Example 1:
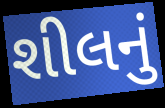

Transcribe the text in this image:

શીલનું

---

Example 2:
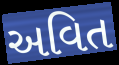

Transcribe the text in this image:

અવિત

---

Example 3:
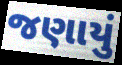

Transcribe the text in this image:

જણાયું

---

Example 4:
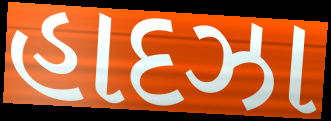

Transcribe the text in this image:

હાદઝા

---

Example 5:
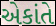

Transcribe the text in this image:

એકાંતે